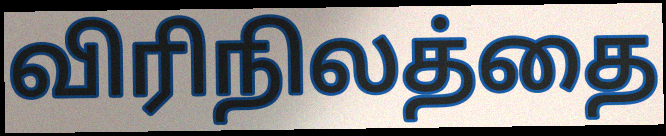
விரிநிலத்தை